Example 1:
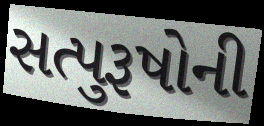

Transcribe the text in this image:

સત્પુરૂષોની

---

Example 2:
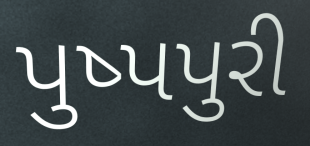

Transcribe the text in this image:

પુષ્પપુરી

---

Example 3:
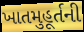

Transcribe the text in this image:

ખાતમુહૂર્તની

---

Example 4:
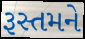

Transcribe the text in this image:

રૂસ્તમને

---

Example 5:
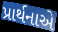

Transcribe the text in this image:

પ્રાર્થનાએ